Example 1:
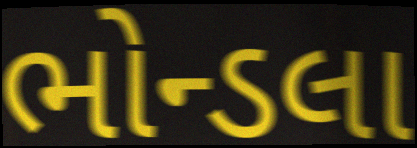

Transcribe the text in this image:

ભોન્ડલા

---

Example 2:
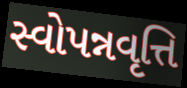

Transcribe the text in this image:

સ્વોપન્નવૃત્તિ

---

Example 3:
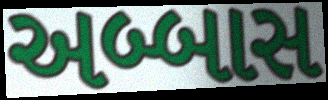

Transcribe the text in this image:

અબ્બાસ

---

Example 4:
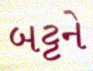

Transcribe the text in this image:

બટ્ટને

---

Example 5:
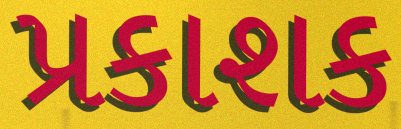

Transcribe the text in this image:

પ્રકાશક